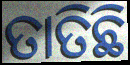
ତାତିଛି